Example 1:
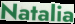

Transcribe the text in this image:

Natalia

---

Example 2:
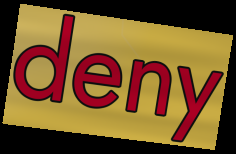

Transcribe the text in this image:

deny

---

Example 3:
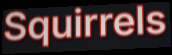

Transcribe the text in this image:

Squirrels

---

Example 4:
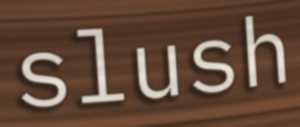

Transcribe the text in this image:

slush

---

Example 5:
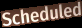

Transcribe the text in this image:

Scheduled